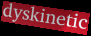
dyskinetic